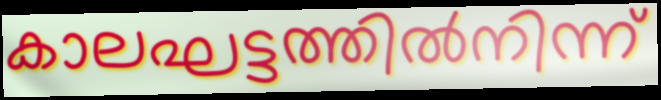
കാലഘട്ടത്തിൽനിന്ന്